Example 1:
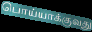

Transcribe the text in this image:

பொய்யாக்குவது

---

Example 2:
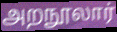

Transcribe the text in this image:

அறநூலார்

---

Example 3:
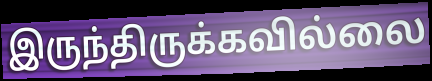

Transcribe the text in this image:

இருந்திருக்கவில்லை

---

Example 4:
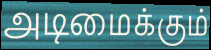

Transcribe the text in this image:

அடிமைக்கும்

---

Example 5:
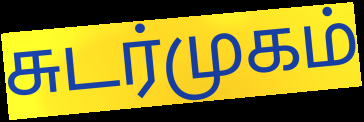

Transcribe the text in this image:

சுடர்முகம்